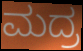
ಮದ್ರ